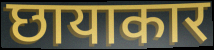
छायाकार